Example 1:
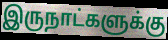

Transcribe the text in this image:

இருநாட்களுக்கு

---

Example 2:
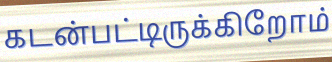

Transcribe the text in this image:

கடன்பட்டிருக்கிறோம்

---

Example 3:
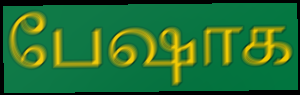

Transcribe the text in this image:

பேஷாக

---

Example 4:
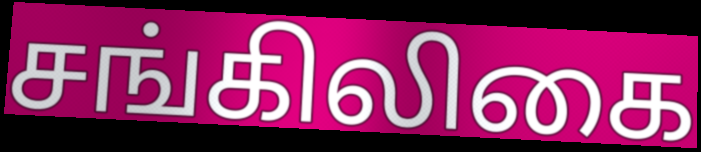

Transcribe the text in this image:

சங்கிலிகை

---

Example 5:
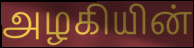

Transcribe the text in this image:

அழகியின்